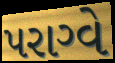
પરાગ્વે